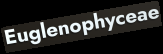
Euglenophyceae